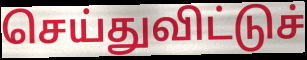
செய்துவிட்டுச்